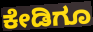
ಕೇಡಿಗೂ